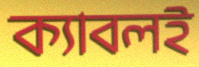
ক্যাবলই